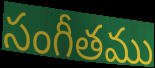
సంగీతము